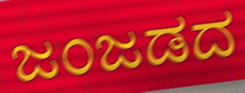
ಜಂಜಡದ